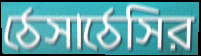
ঠেসাঠেসির